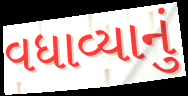
વધાવ્યાનું